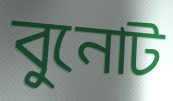
বুনোট